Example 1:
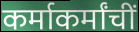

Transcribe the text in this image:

कर्माकर्मांचीं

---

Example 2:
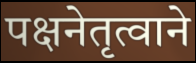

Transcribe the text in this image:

पक्षनेतृत्वाने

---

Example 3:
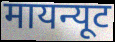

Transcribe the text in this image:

मायन्यूट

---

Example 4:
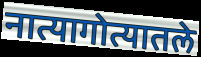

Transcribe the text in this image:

नात्यागोत्यातले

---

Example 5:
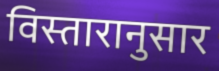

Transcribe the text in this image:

विस्तारानुसार